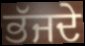
ਭੱਜਦੇ